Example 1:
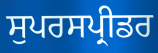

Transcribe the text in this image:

ਸੁਪਰਸਪ੍ਰੀਡਰ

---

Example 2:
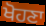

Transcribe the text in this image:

ਖੋਹਣਾ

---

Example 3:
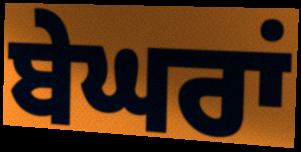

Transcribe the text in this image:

ਬੇਘਰਾਂ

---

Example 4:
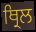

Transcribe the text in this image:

ਥ੍ਰਿਲ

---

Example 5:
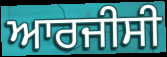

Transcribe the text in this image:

ਆਰਜੀਸੀ